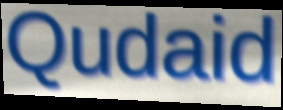
Qudaid